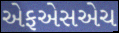
એફએસએચ